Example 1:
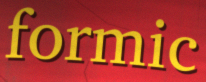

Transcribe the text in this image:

formic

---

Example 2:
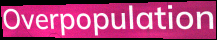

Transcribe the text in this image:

Overpopulation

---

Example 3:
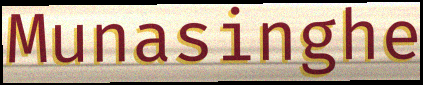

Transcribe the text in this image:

Munasinghe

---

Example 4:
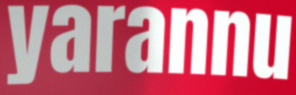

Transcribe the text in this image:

yarannu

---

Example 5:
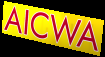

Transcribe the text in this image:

AICWA